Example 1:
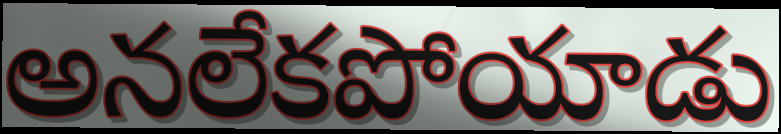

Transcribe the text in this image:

అనలేకపోయాడు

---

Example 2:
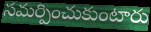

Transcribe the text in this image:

సమర్పించుకుంటారు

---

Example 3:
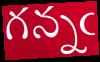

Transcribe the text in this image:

గన్నఁ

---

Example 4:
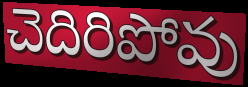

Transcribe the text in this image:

చెదిరిపోవు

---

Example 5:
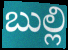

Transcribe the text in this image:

బుల్లి